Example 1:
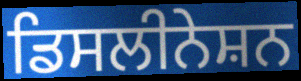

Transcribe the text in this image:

ਡਿਸਲੀਨੇਸ਼ਨ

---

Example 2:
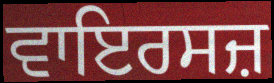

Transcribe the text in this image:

ਵਾਇਰਸਜ਼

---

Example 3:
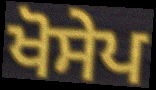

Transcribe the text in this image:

ਖੋਸੇਪ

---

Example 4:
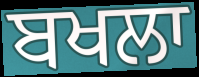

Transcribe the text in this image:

ਬਖਲਾ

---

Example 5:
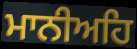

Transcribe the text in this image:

ਮਾਨੀਅਹਿ